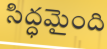
సిద్ధమైంది